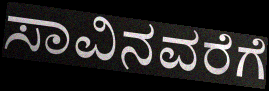
ಸಾವಿನವರೆಗೆ